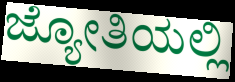
ಜ್ಯೋತಿಯಲ್ಲಿ